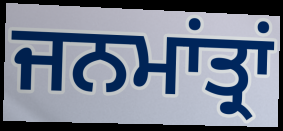
ਜਨਮਾਂਤ੍ਰਾਂ